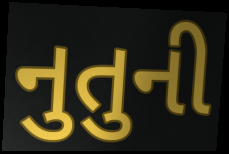
નુતુની